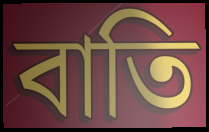
বাতি